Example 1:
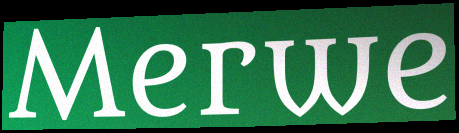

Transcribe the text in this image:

Merwe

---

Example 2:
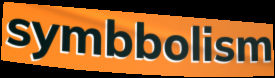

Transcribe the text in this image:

symbbolism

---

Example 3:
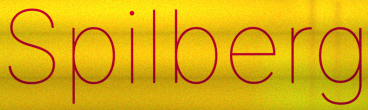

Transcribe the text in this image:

Spilberg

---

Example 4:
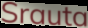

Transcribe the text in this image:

Srauta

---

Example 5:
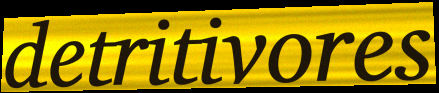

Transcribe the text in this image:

detritivores